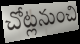
చోట్లనుంచి